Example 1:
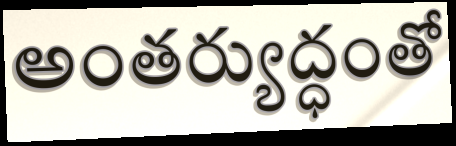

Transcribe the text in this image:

అంతర్యుద్ధంతో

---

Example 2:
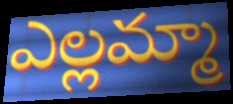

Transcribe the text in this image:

ఎల్లమ్మా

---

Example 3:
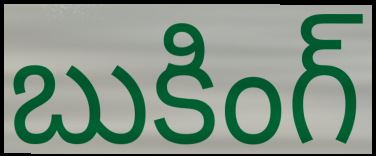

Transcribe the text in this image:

బుకింగ్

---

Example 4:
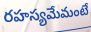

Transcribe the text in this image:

రహస్యమేమంటే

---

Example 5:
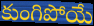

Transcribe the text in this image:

కుంగిపోయే